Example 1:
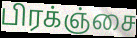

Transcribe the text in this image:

பிரக்ஞ்சை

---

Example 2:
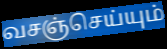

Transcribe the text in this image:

வசஞ்செய்யும்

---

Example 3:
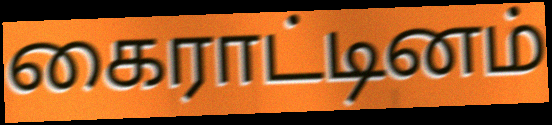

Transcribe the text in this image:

கைராட்டினம்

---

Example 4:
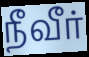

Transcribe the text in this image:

நீவீர்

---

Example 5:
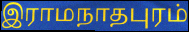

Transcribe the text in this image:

இராமநாதபுரம்